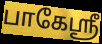
பாகேஸ்ரீ